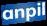
anpil